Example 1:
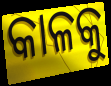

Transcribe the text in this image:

କାଳକୁ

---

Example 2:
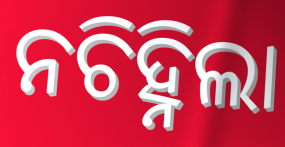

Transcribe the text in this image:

ନଚିହ୍ନିଲା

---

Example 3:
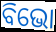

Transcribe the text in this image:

ବିଭୋ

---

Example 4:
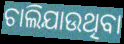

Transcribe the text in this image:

ଚାଲିଯାଉଥିବା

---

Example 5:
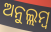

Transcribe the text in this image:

ଅନୁଲ୍ଲମ୍ବ